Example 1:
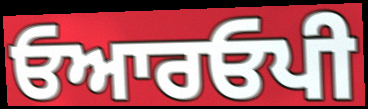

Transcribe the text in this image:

ਓਆਰਓਪੀ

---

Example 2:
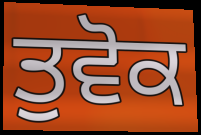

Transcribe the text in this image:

ਤੁਵੋਕ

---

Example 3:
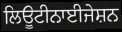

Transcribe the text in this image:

ਲਿਊਟੀਨਾਈਜੇਸ਼ਨ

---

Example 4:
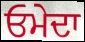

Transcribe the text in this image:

ਓਮੇਦਾ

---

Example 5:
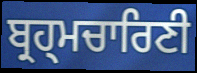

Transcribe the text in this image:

ਬ੍ਰਹ੍ਮਚਾਰਿਣੀ